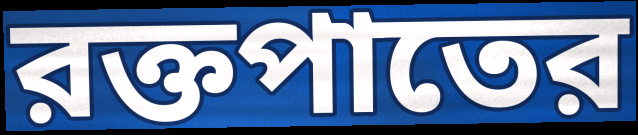
রক্তপাতের